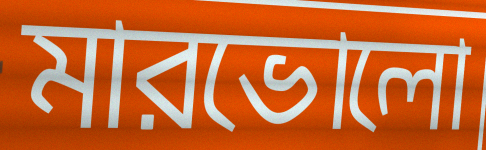
মারভোলো